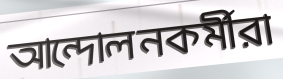
আন্দোলনকর্মীরা